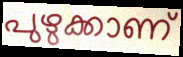
പുഴുക്കാണ്